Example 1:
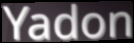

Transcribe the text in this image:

Yadon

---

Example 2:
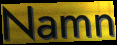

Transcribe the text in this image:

Namn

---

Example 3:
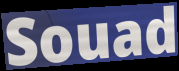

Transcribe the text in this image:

Souad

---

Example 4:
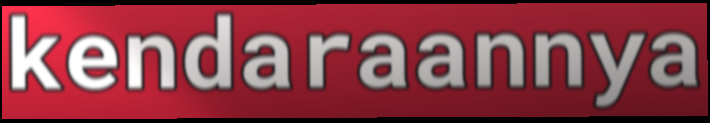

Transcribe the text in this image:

kendaraannya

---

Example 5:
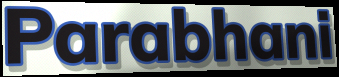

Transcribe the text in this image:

Parabhani